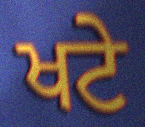
ਖਟੇ